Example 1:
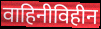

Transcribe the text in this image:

वाहिनीविहीन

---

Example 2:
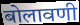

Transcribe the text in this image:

बोलावणी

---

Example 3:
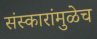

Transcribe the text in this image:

संस्कारांमुळेच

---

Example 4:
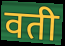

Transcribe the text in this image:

वती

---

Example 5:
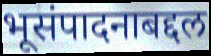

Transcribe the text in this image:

भूसंपादनाबद्दल